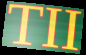
TII